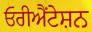
ਓਰੀਐਂਟੇਸ਼ਨ